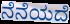
ನೆನೆಯದೆ